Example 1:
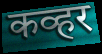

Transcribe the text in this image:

कव्हर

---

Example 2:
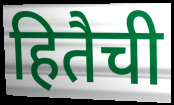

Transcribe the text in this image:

हितैची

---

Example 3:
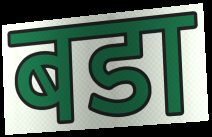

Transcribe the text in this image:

बडा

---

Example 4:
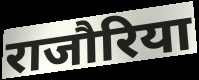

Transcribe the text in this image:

राजौरिया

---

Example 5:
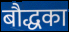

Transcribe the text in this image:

बौद्धका